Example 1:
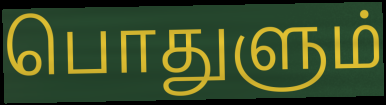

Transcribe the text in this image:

பொதுளும்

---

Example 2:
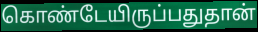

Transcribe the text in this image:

கொண்டேயிருப்பதுதான்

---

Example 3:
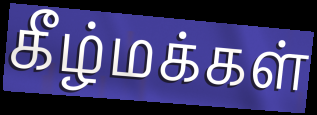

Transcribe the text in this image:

கீழ்மக்கள்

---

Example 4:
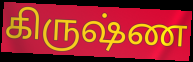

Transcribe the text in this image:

கிருஷ்ண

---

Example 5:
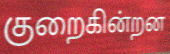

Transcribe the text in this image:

குறைகின்றன